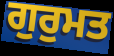
ਗੁਰੁਮਤ